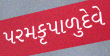
પરમકૃપાળુદેવે